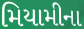
મિયામીના